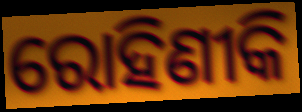
ରୋହିଣୀକି